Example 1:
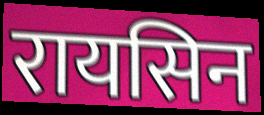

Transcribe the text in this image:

रायसिन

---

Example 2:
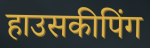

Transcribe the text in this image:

हाउसकीपिंग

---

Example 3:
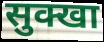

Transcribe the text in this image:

सुक्खा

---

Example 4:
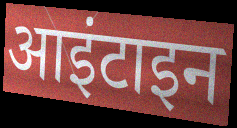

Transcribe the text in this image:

आइंटाइन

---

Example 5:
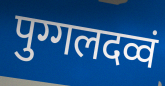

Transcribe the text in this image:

पुग्गलदव्वं